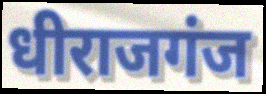
धीराजगंज